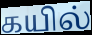
கயில்